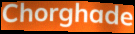
Chorghade